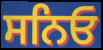
ਸਨਿਓ